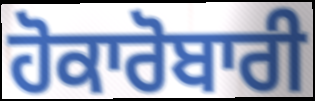
ਹੋਕਾਰੋਬਾਰੀ